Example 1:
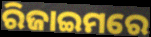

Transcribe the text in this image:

ରିଜାଇମରେ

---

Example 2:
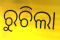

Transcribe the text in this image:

ରୁଚିଲା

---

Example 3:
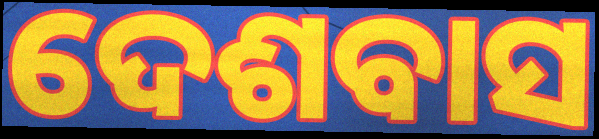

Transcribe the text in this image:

ଦେଶବାସ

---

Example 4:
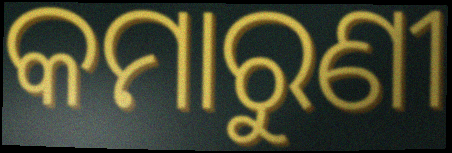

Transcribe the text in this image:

କମାରୁଣୀ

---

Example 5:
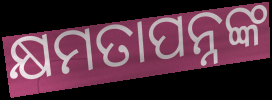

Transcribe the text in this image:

କ୍ଷମତାପନ୍ନଙ୍କ